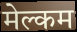
मेल्कम